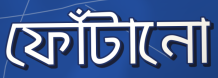
ফোঁটানো